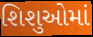
શિશુઓમાં